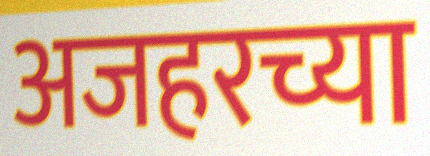
अजहरच्या